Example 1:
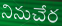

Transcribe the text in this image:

నినుచేర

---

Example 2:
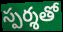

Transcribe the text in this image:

స్పర్శతో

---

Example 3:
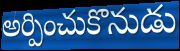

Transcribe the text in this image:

అర్పించుకొనుడు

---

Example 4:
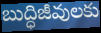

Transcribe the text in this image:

బుద్ధిజీవులకు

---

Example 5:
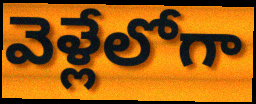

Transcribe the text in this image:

వెళ్లేలోగా